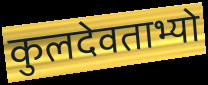
कुलदेवताभ्यो